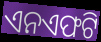
ଏନଏଫଟି